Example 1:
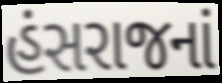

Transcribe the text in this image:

હંસરાજનાં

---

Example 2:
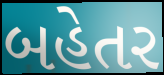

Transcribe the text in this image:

બહેતર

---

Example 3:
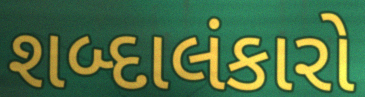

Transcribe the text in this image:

શબ્દાલંકારો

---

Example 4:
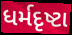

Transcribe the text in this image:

ધર્મદૃષ્ટા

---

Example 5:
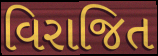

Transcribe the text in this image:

વિરાજિત